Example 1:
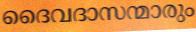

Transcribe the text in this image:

ദൈവദാസന്മാരും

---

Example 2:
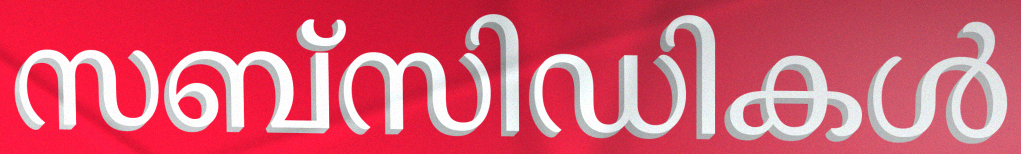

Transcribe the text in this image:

സബ്സിഡികൾ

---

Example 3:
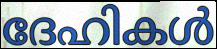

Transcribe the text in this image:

ദേഹികൾ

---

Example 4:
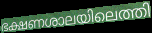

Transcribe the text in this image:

ഭക്ഷണശാലയിലെത്തി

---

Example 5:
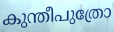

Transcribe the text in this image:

കുന്തീപുത്രോ